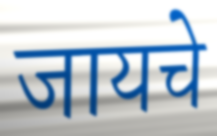
जायचे